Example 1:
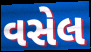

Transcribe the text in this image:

વસેલ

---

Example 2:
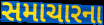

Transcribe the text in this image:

સમાચારના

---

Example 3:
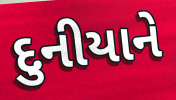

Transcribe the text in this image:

દુનીયાને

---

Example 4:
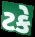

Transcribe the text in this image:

ટકે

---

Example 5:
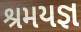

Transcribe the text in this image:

શ્રમયજ્ઞ